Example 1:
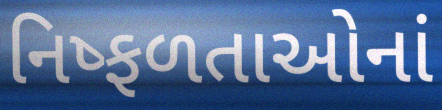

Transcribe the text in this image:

નિષ્ફળતાઓનાં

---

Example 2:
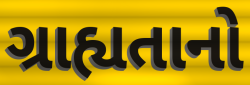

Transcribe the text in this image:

ગ્રાહ્યતાનો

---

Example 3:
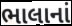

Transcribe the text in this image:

ભાલાનાં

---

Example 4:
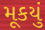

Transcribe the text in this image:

મૂકયું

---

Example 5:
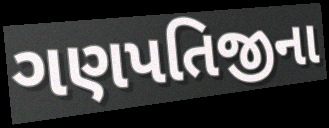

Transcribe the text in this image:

ગણપતિજીના